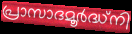
പ്രാസാദമൂർദ്ധ്നി